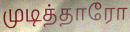
முடித்தாரோ